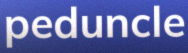
peduncle